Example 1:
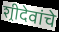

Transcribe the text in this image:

श्रीदेवांचे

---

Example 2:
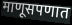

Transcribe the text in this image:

माणूसपणात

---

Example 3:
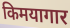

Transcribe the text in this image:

किमयागार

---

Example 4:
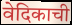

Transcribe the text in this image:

वेदिकाची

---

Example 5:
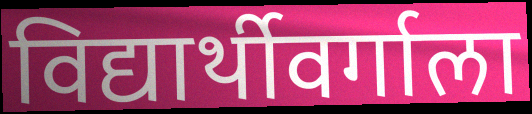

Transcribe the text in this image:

विद्यार्थीवर्गाला